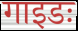
गाइडः